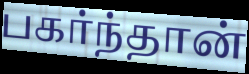
பகர்ந்தான்